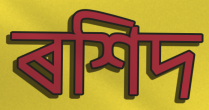
ৰশিদ